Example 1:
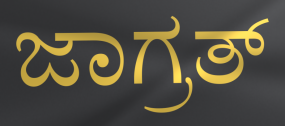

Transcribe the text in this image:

ಜಾಗ್ರತ್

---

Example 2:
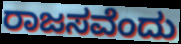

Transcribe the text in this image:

ರಾಜಸವೆಂದು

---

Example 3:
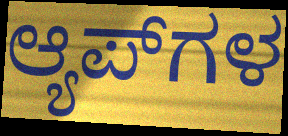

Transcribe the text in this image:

ಆ್ಯಪ್‌ಗಳ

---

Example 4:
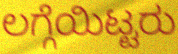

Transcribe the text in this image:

ಲಗ್ಗೆಯಿಟ್ಟರು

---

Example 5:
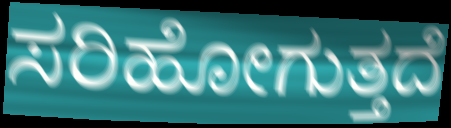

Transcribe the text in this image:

ಸರಿಹೋಗುತ್ತದೆ